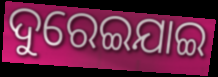
ଦୁରେଇଯାଇ